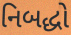
નિબદ્ધો